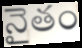
నైతం